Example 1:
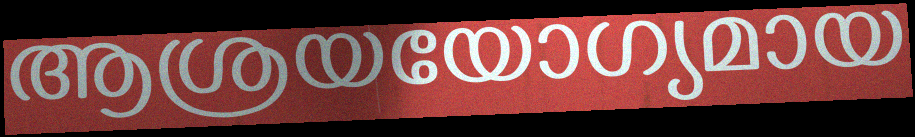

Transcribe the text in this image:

ആശ്രയയോഗ്യമായ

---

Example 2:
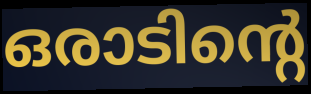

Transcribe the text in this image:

ഒരാടിന്റെ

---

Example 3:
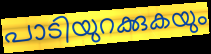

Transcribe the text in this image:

പാടിയുറക്കുകയും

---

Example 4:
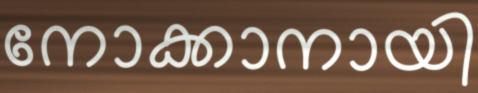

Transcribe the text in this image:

നോക്കാനായി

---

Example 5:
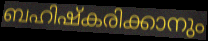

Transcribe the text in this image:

ബഹിഷ്കരിക്കാനും